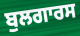
ਬੁਲਗਾਰਸ